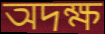
অদক্ষ